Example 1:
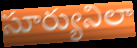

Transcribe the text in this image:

సూర్యునిలా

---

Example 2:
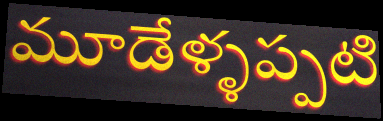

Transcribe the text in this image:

మూడేళ్ళప్పటి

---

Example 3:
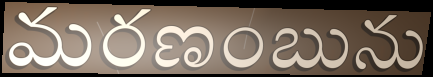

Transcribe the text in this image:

మరణంబును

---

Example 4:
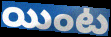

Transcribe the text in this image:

యింట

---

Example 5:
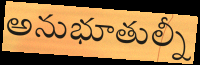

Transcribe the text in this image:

అనుభూతుల్నీ